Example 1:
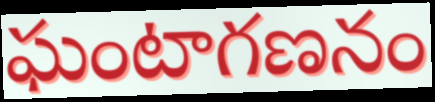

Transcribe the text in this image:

ఘంటాగణనం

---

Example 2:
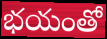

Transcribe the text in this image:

భయంతో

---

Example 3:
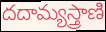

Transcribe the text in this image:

దదామ్యస్త్రాణి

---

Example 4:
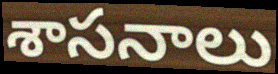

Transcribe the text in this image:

శాసనాలు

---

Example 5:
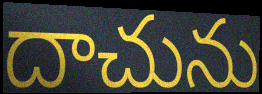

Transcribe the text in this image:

దాచును